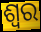
ଶ୍ୱର